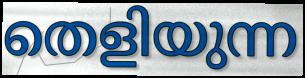
തെളിയുന്ന